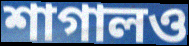
শাগালও